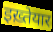
इख़्तेयार